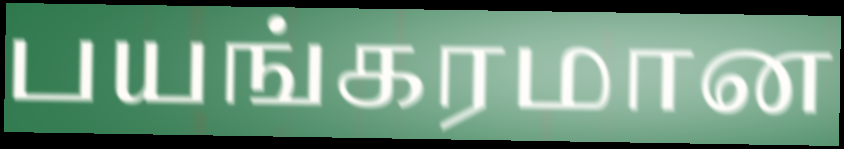
பயங்கரமான